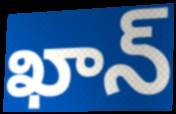
ఖాన్